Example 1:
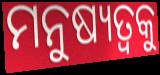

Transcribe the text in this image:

ମନୁଷ୍ୟତ୍ୱକୁ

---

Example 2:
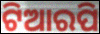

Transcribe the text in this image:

ଟିଆରପି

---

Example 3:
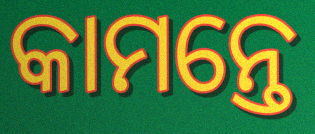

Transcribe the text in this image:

କାମନ୍ତେ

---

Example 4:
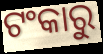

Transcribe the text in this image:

ଟଂକାରୁ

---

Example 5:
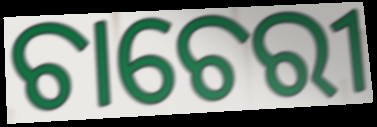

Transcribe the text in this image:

ଚାଚେରୀ